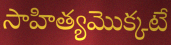
సాహిత్యమొక్కటే